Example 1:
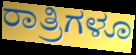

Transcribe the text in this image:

ರಾತ್ರಿಗಳೂ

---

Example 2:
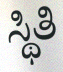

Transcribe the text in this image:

ಸ್ಥಿತಿ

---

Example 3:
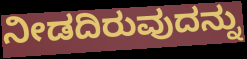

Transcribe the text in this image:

ನೀಡದಿರುವುದನ್ನು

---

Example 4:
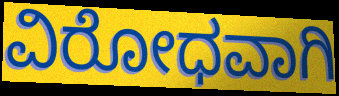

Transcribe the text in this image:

ವಿರೋಧವಾಗಿ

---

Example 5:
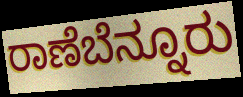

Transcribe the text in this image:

ರಾಣೆಬೆನ್ನೂರು